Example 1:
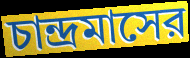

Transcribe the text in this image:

চান্দ্রমাসের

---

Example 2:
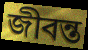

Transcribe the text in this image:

জীবন্ত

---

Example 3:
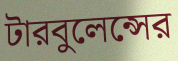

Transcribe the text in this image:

টারবুলেন্সের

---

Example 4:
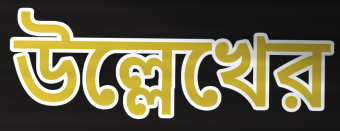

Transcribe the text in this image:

উল্লেখের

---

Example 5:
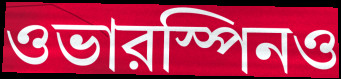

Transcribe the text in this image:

ওভারস্পিনও